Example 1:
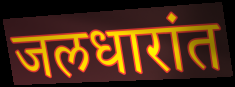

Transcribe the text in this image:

जलधारांत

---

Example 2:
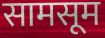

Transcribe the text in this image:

सामसूम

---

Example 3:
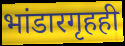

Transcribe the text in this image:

भांडारगृहही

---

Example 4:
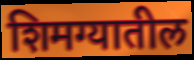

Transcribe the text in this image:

शिमग्यातील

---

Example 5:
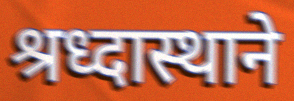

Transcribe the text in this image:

श्रध्दास्थाने